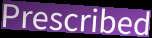
Prescribed